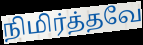
நிமிர்த்தவே